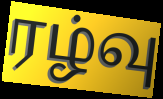
ரழ்வு